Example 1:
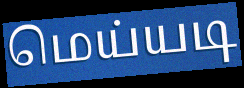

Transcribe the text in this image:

மெய்யடி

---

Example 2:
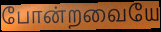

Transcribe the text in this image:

போன்றவையே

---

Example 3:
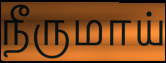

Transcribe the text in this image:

நீருமாய்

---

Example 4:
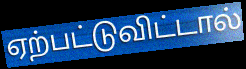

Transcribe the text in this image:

ஏற்பட்டுவிட்டால்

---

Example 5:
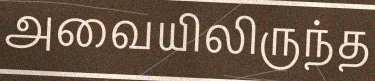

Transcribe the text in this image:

அவையிலிருந்த